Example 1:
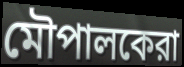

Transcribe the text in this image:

মৌপালকেরা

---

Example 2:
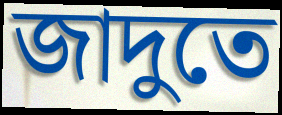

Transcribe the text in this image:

জাদুতে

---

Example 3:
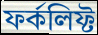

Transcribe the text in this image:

ফর্কলিফ্ট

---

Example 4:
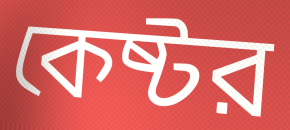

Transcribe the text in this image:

কেষ্টর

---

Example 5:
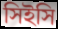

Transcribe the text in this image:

সিইসি